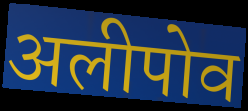
अलीपोव